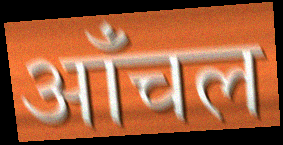
ऑंचल